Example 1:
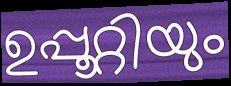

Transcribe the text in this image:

ഉപ്പൂറ്റിയും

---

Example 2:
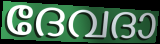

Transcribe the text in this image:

ദേവദാ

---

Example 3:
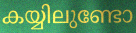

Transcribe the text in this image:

കയ്യിലുണ്ടോ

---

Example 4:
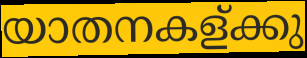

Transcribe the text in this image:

യാതനകള്ക്കു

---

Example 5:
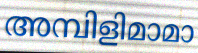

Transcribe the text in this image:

അമ്പിളിമാമാ